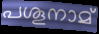
പശൂനാമ്